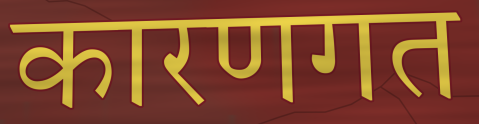
कारणगत